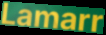
Lamarr